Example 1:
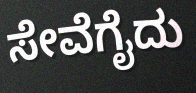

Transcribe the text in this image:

ಸೇವೆಗೈದು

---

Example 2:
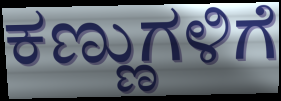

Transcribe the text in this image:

ಕಣ್ಣುಗಳಿಗೆ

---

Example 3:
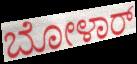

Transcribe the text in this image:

ಬೋಳಾರ್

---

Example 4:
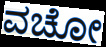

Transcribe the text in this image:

ವಚೋ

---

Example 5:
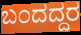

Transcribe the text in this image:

ಬಂದದ್ದರ